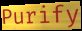
Purify